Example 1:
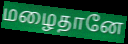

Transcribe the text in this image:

மழைதானே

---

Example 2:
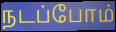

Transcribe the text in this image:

நடப்போம்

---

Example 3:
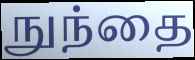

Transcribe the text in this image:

நுந்தை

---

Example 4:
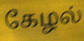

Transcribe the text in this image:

கேழல்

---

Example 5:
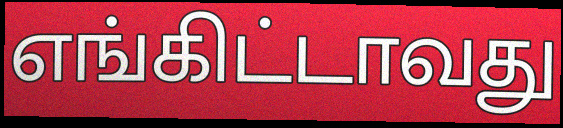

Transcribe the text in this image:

எங்கிட்டாவது